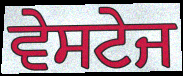
ਵੇਸਟੇਜ